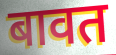
बावत